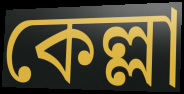
কেল্লা